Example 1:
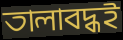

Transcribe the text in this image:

তালাবদ্ধই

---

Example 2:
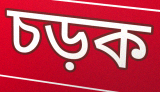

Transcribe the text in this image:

চড়ক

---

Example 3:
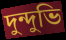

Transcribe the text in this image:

দুন্দুভি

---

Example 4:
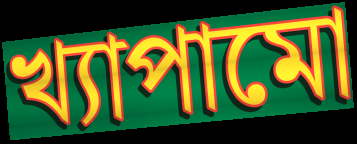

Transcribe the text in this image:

খ্যাপামো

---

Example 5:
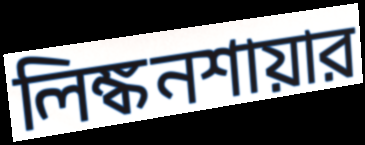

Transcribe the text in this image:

লিঙ্কনশায়ার